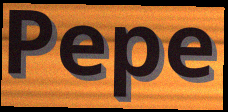
Pepe